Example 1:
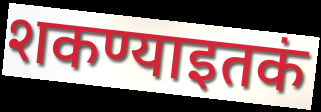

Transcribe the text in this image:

शकण्याइतकं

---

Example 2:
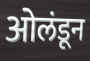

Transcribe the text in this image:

ओलंडून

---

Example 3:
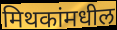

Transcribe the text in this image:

मिथकांमधील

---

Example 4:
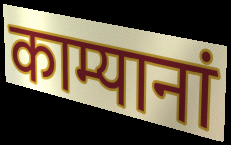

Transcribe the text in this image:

काम्यानां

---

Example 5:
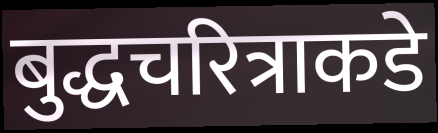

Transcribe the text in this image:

बुद्धचरित्राकडे